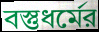
বস্তুধর্মের